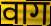
वाग